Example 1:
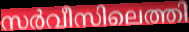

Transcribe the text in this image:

സർവീസിലെത്തി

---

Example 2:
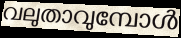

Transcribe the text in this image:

വലുതാവുമ്പോൾ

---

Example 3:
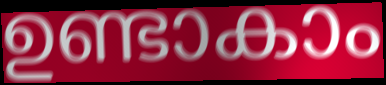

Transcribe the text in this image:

ഉണ്ടാകാം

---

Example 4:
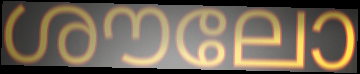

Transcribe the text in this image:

ശൗലോ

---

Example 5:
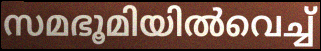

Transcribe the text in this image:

സമഭൂമിയിൽവെച്ച്